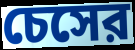
চেসের